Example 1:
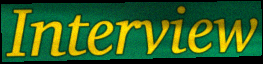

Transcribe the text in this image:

Interview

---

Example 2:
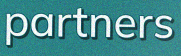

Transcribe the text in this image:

partners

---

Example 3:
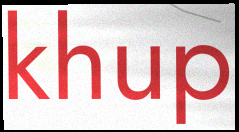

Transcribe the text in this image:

khup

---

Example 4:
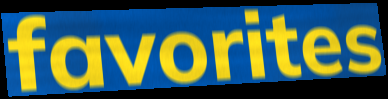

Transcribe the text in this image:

favorites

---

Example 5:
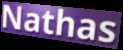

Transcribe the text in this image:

Nathas